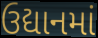
ઉદ્યાનમાં